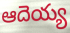
ఆదెయ్య